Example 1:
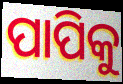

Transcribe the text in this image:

ପାପିକୁ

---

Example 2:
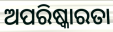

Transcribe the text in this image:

ଅପରିଷ୍କାରତା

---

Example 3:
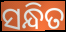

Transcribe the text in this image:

ସନ୍ଧିତ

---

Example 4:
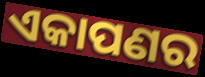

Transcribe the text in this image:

ଏକାପଣର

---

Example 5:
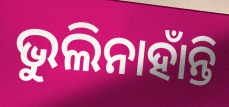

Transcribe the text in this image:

ଭୁଲିନାହାଁନ୍ତି